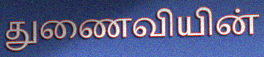
துணைவியின்